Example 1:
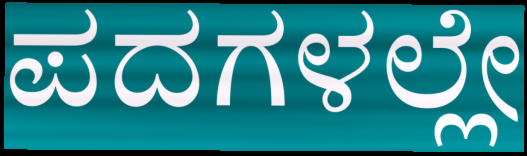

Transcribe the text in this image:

ಪದಗಳಲ್ಲೇ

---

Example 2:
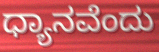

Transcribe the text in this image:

ಧ್ಯಾನವೆಂದು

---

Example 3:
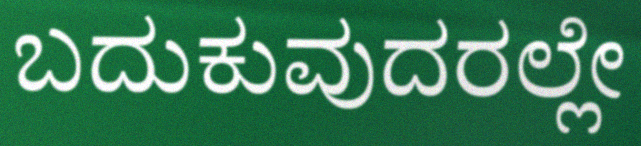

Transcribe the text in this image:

ಬದುಕುವುದರಲ್ಲೇ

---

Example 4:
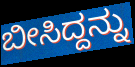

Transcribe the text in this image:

ಬೀಸಿದ್ದನ್ನು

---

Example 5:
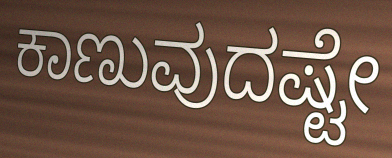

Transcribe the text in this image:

ಕಾಣುವುದಷ್ಟೇ